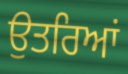
ਉਤਰਿਆਂ